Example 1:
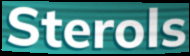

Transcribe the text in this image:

Sterols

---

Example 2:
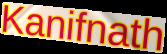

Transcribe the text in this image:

Kanifnath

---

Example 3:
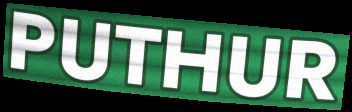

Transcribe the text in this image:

PUTHUR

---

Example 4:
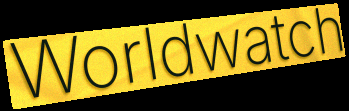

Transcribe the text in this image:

Worldwatch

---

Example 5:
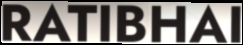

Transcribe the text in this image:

RATIBHAI